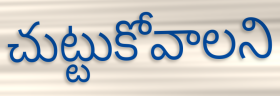
చుట్టుకోవాలని